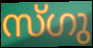
സ്ഗു